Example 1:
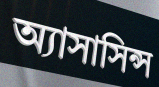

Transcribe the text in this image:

অ্যাসাসিন্স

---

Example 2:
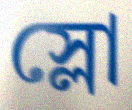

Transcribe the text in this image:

স্লো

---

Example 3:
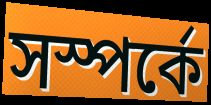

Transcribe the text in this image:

সস্পর্কে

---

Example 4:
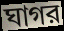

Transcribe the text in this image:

ঘাগর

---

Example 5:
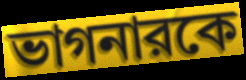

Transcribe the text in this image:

ভাগনারকে